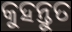
କୁହନ୍ତୁତ